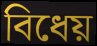
বিধেয়